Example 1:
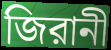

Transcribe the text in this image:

জিরানী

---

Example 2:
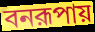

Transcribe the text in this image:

বনরূপায়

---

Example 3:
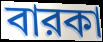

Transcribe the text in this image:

বারকা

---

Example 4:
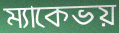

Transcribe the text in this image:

ম্যাকেভয়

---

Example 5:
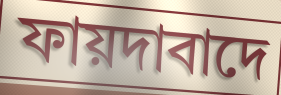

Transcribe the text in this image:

ফায়দাবাদে